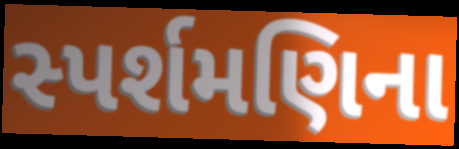
સ્પર્શમણિના